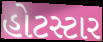
હોટસ્ટાર